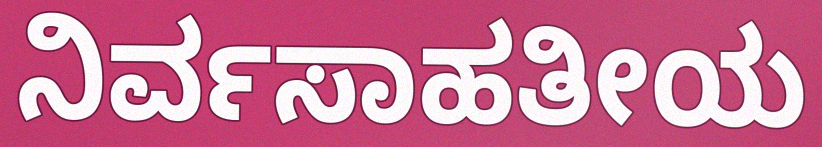
ನಿರ್ವಸಾಹತೀಯ